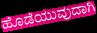
ಹೊಡೆಯುವುದಾಗಿ